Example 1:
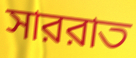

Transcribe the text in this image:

সাররাত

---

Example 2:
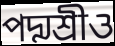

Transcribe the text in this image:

পদ্মশ্রীও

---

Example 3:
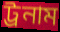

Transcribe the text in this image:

ট্রনাম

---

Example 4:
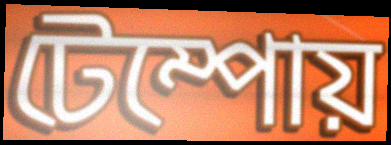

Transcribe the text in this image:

টেম্পোয়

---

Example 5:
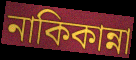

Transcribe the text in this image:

নাকিকান্না